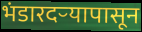
भंडारदऱ्यापासून